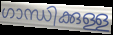
ഗാന്ധിക്കുള്ള